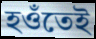
হওঁতেই